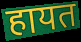
हायत